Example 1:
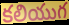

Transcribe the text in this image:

కలియుగ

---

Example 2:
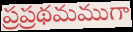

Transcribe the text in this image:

ప్రప్రథమముగా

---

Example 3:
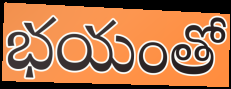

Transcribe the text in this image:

భయంతో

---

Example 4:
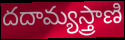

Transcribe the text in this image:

దదామ్యస్త్రాణి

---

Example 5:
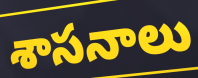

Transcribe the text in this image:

శాసనాలు